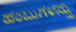
ಹಂಬುಗಳನ್ನು